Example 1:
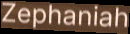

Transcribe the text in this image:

Zephaniah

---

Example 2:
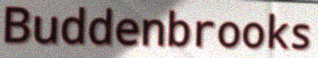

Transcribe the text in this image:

Buddenbrooks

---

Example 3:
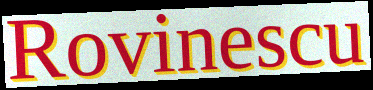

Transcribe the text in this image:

Rovinescu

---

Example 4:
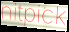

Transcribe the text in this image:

nitpick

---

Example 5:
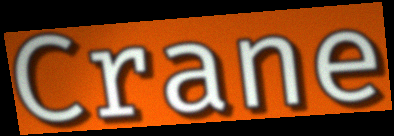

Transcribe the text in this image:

Crane